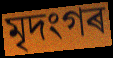
মৃদংগৰ